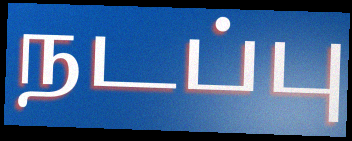
நடப்பு